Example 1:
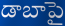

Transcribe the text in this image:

డాబాపై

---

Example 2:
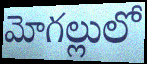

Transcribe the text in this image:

మోగల్లులో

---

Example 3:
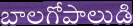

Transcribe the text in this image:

బాలగోపాలుడి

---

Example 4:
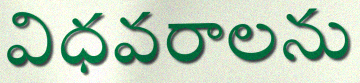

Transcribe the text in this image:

విధవరాలను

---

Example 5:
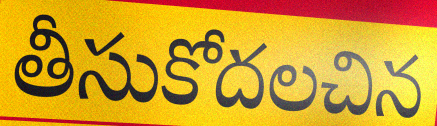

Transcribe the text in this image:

తీసుకోదలచిన